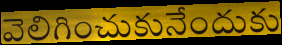
వెలిగించుకునేందుకు